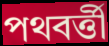
পথবর্ত্তী